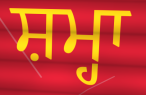
ਸ਼ਮ੍ਹਾ